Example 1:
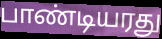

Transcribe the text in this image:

பாண்டியரது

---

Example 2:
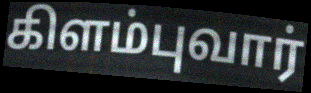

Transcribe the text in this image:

கிளம்புவார்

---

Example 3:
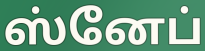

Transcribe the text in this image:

ஸ்னேப்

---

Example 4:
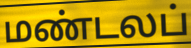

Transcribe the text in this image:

மண்டலப்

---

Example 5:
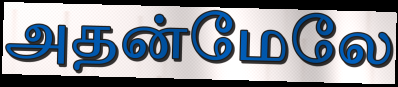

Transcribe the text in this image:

அதன்மேலே